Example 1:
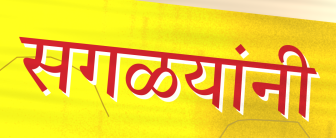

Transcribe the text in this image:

सगळयांनी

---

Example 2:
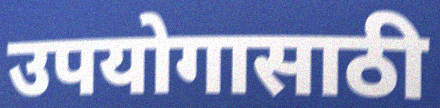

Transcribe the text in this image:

उपयोगासाठी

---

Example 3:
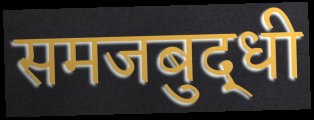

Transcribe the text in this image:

समजबुद्धी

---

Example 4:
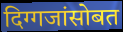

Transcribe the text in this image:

दिग्गजांसोबत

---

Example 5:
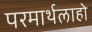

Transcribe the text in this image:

परमार्थलाहो